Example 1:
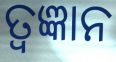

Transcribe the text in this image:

ତ୍ୱଜ୍ଞାନ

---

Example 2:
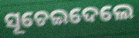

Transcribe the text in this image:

ସୂଚେଇଦେଲେ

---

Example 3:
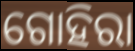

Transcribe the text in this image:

ଗୋହିରା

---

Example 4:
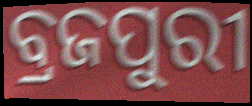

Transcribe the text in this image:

ବ୍ରଜପୁରୀ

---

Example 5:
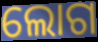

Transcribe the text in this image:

ଲୋଗ